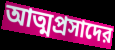
আত্মপ্রসাদের